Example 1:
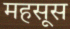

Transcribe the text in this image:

महसूस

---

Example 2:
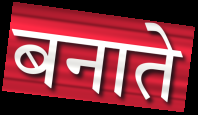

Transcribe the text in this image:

बनाते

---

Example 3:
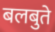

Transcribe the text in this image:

बलबुते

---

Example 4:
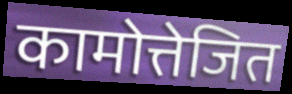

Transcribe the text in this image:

कामोत्तेजित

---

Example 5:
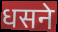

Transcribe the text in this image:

धसने